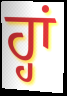
ਹ੍ਹਾਂ